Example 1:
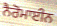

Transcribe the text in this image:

ਨੈਰੋਮਾਈਨ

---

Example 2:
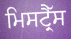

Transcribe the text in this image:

ਮਿਸਟ੍ਰੈੱਸ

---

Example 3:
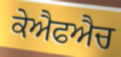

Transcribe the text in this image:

ਕੇਐਫਐਚ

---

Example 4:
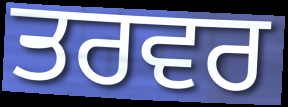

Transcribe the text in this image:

ਤਰਵਰ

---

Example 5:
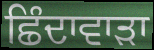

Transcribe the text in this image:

ਛਿੰਦਾਵਾੜਾ